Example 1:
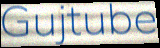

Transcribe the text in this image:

Gujtube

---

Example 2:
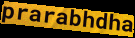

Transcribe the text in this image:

prarabhdha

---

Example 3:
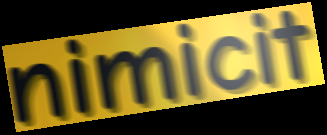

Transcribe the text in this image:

nimicit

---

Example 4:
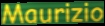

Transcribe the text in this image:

Maurizio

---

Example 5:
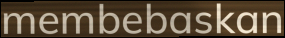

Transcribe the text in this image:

membebaskan